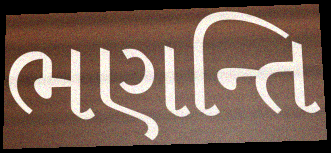
ભણન્તિ